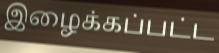
இழைக்கப்பட்ட